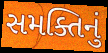
સમક્તિનું